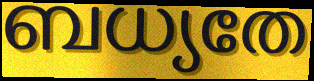
ബധ്യതേ